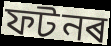
ফটনৰ